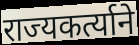
राज्यकर्त्याने